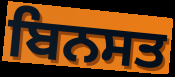
ਬਿਨਸਤ